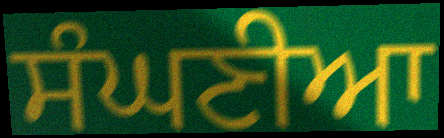
ਸੰਘਣੀਆ